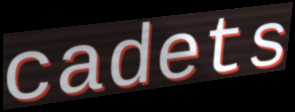
cadets